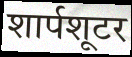
शार्पशूटर